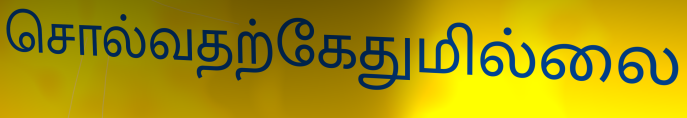
சொல்வதற்கேதுமில்லை